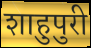
शाहुपुरी